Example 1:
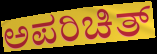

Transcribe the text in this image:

ಅಪರಿಚಿತ್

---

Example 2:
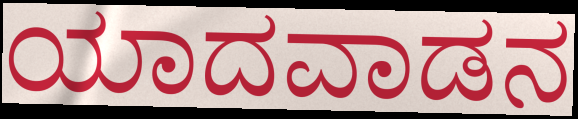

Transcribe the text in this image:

ಯಾದವಾಡನ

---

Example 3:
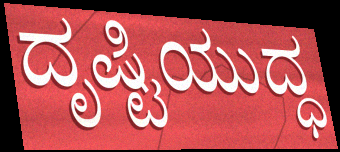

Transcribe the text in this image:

ದೃಷ್ಟಿಯುದ್ಧ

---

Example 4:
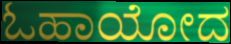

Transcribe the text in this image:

ಓಹಾಯೋದ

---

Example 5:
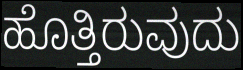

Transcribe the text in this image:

ಹೊತ್ತಿರುವುದು